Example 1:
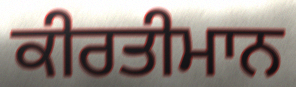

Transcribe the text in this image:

ਕੀਰਤੀਮਾਨ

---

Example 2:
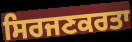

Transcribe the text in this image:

ਸਿਰਜਣਕਰਤਾ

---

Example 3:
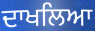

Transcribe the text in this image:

ਦਾਖਲਿਆ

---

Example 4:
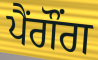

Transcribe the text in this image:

ਪੈਂਗੌਂਗ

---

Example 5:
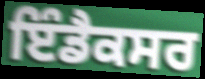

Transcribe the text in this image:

ਇੰਡੈਕਸਰ